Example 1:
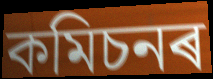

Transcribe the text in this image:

কমিচনৰ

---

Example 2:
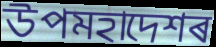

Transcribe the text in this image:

উপমহাদেশৰ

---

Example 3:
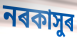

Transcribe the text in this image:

নৰকাসুৰ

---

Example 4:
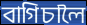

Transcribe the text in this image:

বাগিচালৈ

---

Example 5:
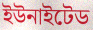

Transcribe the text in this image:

ইউনাইটেড